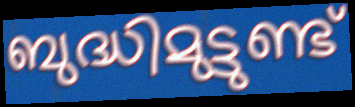
ബുദ്ധിമുട്ടുണ്ട്